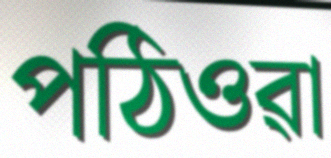
পঠিওৱা